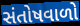
સંતોષવાળો